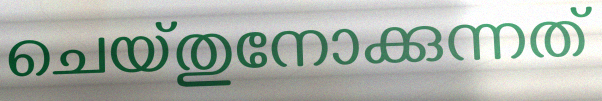
ചെയ്തുനോക്കുന്നത്